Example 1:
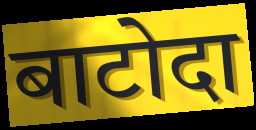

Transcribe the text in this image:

बाटोदा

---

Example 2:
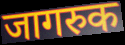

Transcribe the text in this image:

जागरुक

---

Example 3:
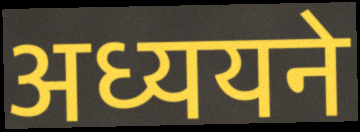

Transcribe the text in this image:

अध्ययने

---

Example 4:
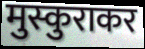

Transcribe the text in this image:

मुस्‍कुराकर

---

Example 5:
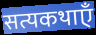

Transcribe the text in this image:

सत्यकथाएँ